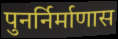
पुनर्निर्माणास